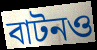
বাটনও